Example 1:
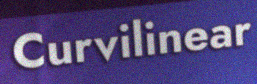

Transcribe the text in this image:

Curvilinear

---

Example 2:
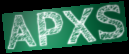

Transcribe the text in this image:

APXS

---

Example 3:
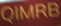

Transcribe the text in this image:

QIMRB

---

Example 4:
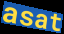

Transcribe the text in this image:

asat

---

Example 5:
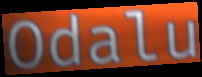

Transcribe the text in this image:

Odalu